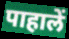
पाहालें